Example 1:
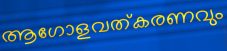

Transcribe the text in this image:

ആഗോളവത്കരണവും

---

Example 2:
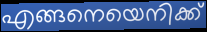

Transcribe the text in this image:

എങ്ങനെയെനിക്ക്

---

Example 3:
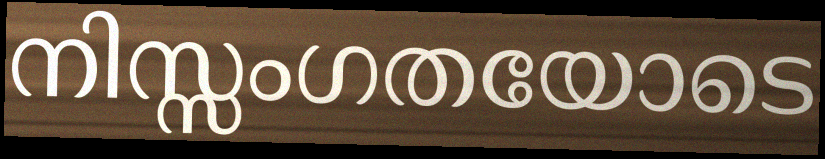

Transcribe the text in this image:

നിസ്സംഗതയോടെ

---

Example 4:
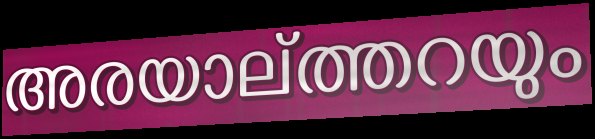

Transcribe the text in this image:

അരയാല്ത്തറയും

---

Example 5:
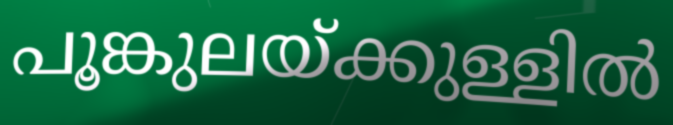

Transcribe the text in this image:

പൂങ്കുലയ്ക്കുള്ളിൽ